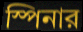
স্পিনার